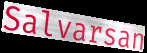
Salvarsan